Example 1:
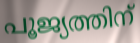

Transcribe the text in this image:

പൂജ്യത്തിന്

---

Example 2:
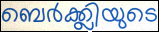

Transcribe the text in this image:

ബെർക്ക്ലിയുടെ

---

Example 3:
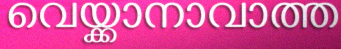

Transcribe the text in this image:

വെയ്ക്കാനാവാത്ത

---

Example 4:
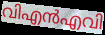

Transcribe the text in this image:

വിഎൻഎവി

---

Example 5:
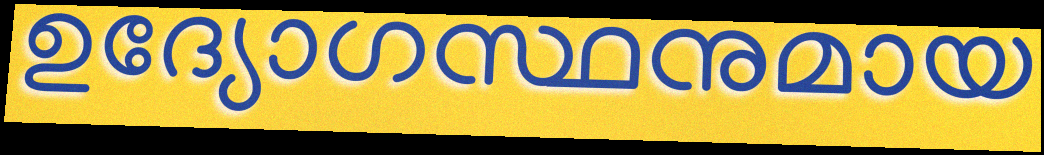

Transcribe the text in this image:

ഉദ്യോഗസ്ഥനുമായ